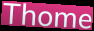
Thome